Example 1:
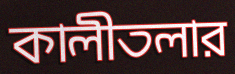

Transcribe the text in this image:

কালীতলার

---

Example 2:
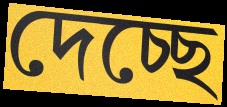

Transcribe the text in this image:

দেচ্ছে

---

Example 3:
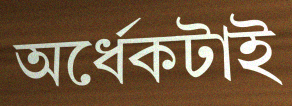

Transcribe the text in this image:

অর্ধেকটাই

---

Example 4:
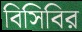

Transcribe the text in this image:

বিসিবির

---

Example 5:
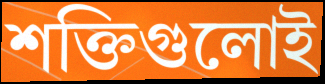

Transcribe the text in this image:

শক্তিগুলোই